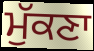
ਮੁੱਕਣਾ